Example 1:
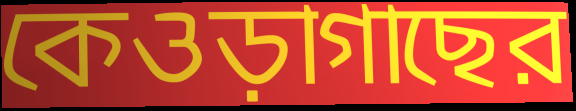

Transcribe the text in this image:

কেওড়াগাছের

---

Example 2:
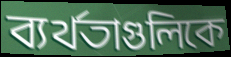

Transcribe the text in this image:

ব্যর্থতাগুলিকে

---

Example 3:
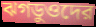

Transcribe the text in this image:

ঝগডুওদের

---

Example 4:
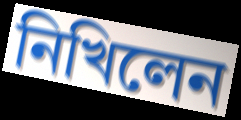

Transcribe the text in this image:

নিখিলেন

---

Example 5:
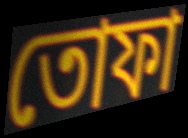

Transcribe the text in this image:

তোফা